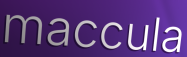
maccula